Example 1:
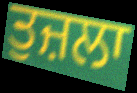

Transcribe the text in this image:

ਤੁਜ਼ਲਾ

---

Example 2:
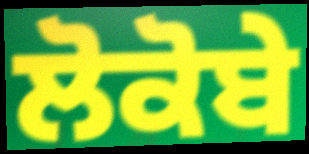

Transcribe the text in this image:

ਲੋਕੋਬੇ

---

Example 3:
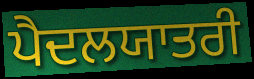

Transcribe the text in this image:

ਪੈਦਲਯਾਤਰੀ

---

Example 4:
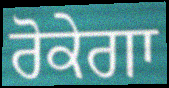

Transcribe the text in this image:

ਰੋਕੇਗਾ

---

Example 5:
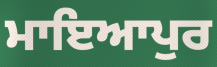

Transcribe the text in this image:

ਮਾਇਆਪੁਰ